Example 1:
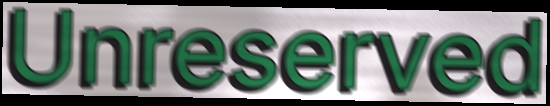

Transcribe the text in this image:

Unreserved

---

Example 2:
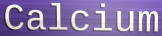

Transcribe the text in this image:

Calcium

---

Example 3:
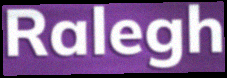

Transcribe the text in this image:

Ralegh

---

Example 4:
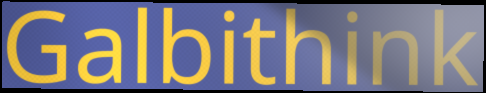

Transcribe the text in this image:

Galbithink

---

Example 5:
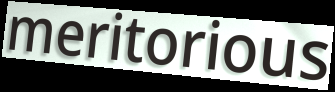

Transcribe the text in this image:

meritorious